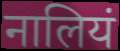
नालियं